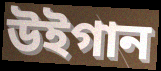
উইগান